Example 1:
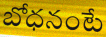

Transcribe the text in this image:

బోధనంటే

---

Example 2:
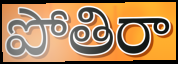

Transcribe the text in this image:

పోతిరా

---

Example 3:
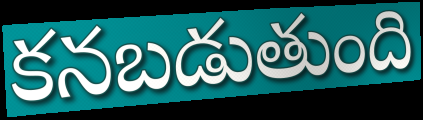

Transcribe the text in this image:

కనబడుతుంది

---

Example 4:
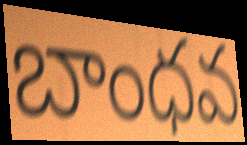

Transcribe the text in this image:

బాంధవ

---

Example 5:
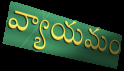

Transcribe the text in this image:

వ్యాయమం